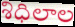
శిధిలాల